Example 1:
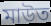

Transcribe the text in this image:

মাউত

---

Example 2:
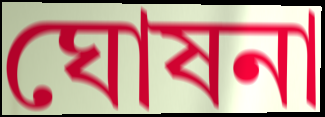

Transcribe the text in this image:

ঘোষনা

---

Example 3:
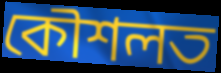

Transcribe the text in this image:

কৌশলত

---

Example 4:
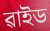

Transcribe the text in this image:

ৱাইড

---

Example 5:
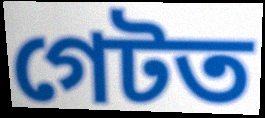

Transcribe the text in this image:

গেটত